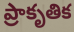
ప్రాకృతిక